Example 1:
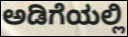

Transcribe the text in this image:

ಅಡಿಗೆಯಲ್ಲಿ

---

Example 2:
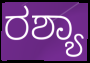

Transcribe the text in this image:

ರಶ್ಯಾ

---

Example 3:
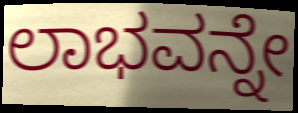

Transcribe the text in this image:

ಲಾಭವನ್ನೇ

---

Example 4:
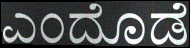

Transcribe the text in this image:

ಎಂದೊಡೆ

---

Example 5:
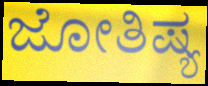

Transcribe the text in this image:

ಜೋತಿಷ್ಯ